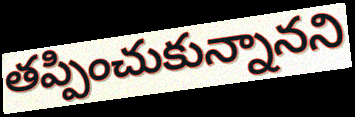
తప్పించుకున్నానని